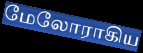
மேலோராகிய